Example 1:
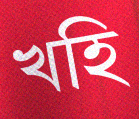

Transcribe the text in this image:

খহি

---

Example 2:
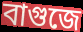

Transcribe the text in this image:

বাগুজে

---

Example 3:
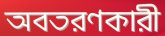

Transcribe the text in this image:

অবতরণকারী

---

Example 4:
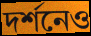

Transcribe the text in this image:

দর্শনেও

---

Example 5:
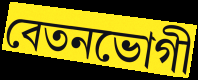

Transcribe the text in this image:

বেতনভোগী